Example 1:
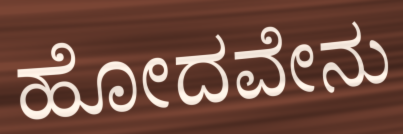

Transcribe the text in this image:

ಹೋದವೇನು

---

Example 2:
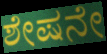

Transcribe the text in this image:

ಶೇಷನೇ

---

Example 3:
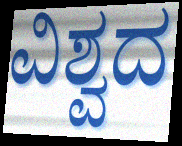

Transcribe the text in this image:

ವಿಶ್ವದ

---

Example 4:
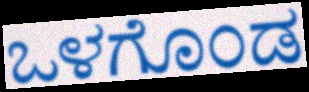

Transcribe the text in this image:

ಒಳಗೊಂಡ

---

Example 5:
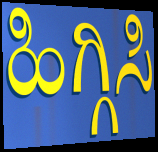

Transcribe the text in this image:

ಹಿಗ್ಗಿಸಿ